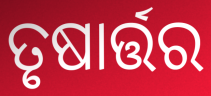
ତୃଷାର୍ତ୍ତର